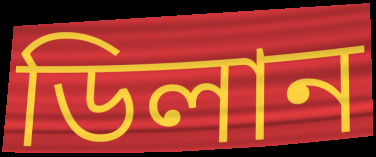
ডিলান